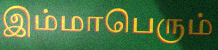
இம்மாபெரும்